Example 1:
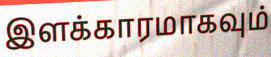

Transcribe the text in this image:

இளக்காரமாகவும்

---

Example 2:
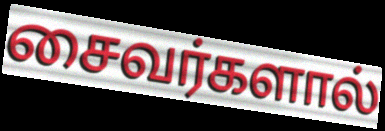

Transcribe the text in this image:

சைவர்களால்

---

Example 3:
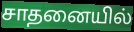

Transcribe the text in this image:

சாதனையில்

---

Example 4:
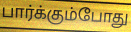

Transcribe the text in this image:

பார்க்கும்போது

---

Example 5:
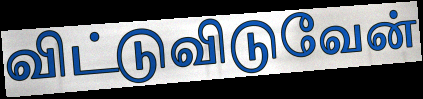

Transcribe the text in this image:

விட்டுவிடுவேன்